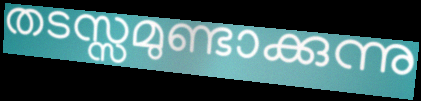
തടസ്സമുണ്ടാക്കുന്നു